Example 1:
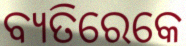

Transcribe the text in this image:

ବ୍ୟତିରେକେ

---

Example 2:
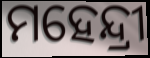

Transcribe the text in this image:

ମହେନ୍ଦ୍ରୀ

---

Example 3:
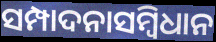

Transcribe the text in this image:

ସମ୍ପାଦନାସମ୍ବିଧାନ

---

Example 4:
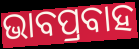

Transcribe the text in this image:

ଭାବପ୍ରବାହ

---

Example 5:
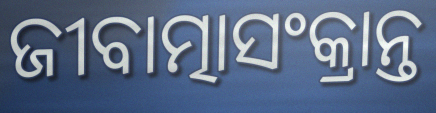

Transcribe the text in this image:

ଜୀବାତ୍ମାସଂକ୍ରାନ୍ତ